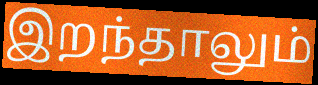
இறந்தாலும்